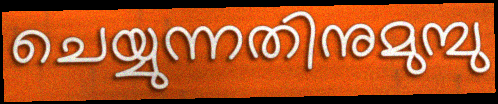
ചെയ്യുന്നതിനുമുമ്പു